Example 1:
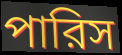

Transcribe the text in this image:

পারিস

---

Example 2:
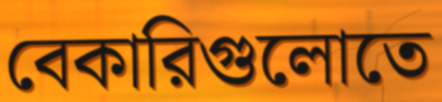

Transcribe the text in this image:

বেকারিগুলোতে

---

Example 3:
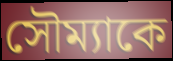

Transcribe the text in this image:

সৌম্যাকে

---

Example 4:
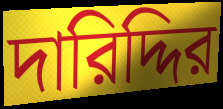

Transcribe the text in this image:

দারিদ্দির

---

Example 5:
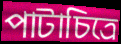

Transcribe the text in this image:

পাটাচিত্রে